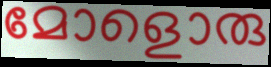
മോളൊരു